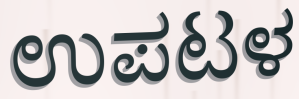
ಉಪಟಳ